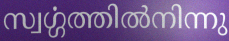
സ്വൎഗ്ഗത്തിൽനിന്നു